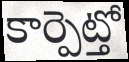
కార్పెట్తో